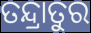
ତନ୍ଦ୍ରାତୁର